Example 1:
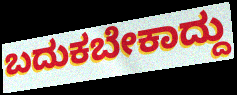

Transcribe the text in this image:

ಬದುಕಬೇಕಾದ್ದು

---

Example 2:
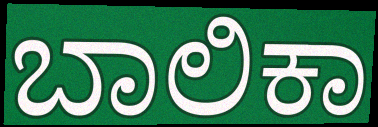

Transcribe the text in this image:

ಬಾಲಿಕಾ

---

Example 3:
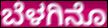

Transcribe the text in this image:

ಬೆಳಗಿನೊ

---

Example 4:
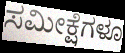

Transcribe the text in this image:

ಸಮೀಕ್ಷೆಗಳೂ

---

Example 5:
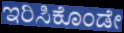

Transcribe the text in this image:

ಇರಿಸಿಕೊಂಡೇ